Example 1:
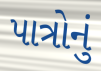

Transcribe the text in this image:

પાત્રોનું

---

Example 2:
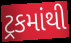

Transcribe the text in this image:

ટ્રકમાંથી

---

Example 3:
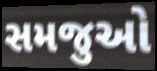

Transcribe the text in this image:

સમજુઓ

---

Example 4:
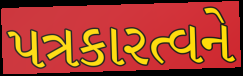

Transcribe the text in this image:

પત્રકારત્વને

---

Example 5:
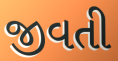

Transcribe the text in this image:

જીવતી